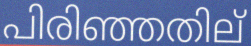
പിരിഞ്ഞതില്